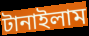
টানাইলাম